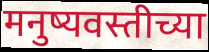
मनुष्यवस्तीच्या